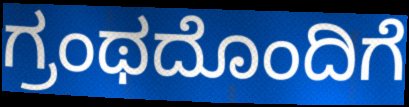
ಗ್ರಂಥದೊಂದಿಗೆ